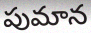
పుమాన